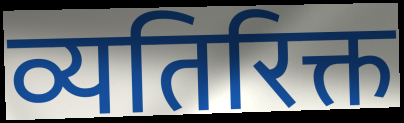
व्यतिरिक्त